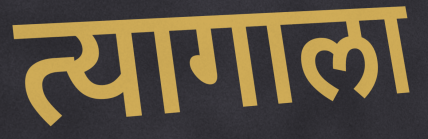
त्यागाला